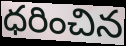
ధరించిన